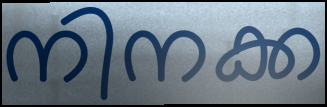
നിനക്ക